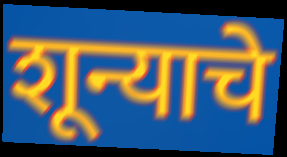
शून्याचे